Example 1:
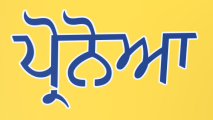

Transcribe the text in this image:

ਪ੍ਰੋਨੋਆ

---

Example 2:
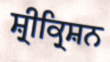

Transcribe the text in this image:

ਸ਼੍ਰੀਕ੍ਰਿਸ਼ਨ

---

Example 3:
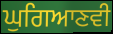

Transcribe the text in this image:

ਘੁਗਿਆਣਵੀ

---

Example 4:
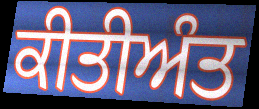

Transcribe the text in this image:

ਕੀਤੀਅੰਤ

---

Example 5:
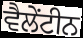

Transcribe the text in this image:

ਵੈਲੇਂਟੀਨ